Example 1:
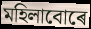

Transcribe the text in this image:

মহিলাবোৰে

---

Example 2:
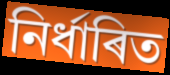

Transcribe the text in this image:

নিৰ্ধাৰিত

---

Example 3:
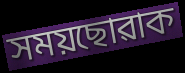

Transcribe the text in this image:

সময়ছোৱাক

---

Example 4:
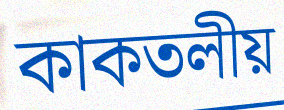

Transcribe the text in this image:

কাকতলীয়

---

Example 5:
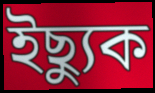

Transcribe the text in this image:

ইছ্যুক